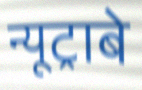
न्यूट्राबे